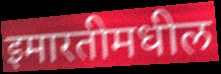
इमारतीमधील